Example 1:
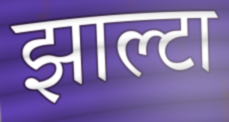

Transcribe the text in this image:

झाल्टा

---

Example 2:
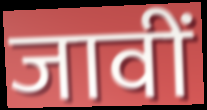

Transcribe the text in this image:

जावीं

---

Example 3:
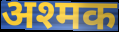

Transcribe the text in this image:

अश्मक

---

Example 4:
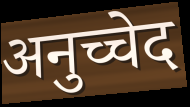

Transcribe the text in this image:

अनुच्चेद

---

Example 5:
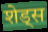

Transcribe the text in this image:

शेड्स